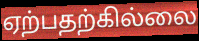
ஏற்பதற்கில்லை